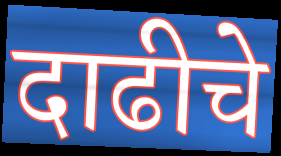
दाढीचे